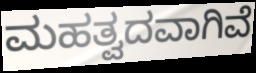
ಮಹತ್ವದವಾಗಿವೆ